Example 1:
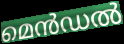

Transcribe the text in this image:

മെൻഡൽ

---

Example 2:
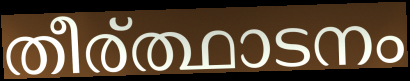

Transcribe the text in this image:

തീര്ത്ഥാടനം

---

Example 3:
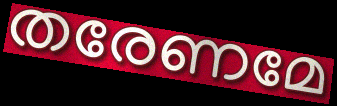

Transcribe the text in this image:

തരേണമേ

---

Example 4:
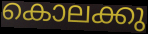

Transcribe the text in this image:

കൊലക്കു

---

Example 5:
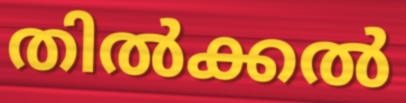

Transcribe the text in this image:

തിൽക്കൽ